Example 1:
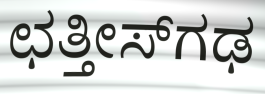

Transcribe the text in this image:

ಛತ್ತೀಸ್‌ಗಢ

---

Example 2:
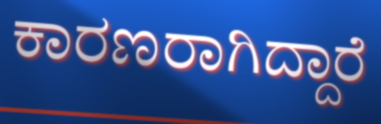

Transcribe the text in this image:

ಕಾರಣರಾಗಿದ್ದಾರೆ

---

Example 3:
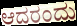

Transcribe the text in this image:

ಆದರಂದು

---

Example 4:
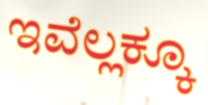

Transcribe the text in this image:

ಇವೆಲ್ಲಕ್ಕೂ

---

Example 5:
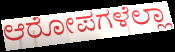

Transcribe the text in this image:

ಆರೋಪಗಳೆಲ್ಲಾ